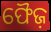
ଫୈଜ଼